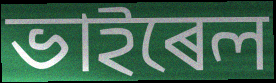
ভাইৰেল